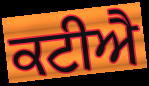
ਕਟੀਐ